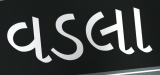
વડલા